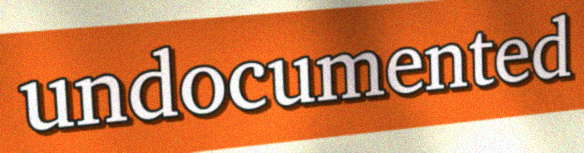
undocumented